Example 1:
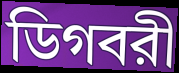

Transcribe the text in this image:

ডিগবরী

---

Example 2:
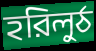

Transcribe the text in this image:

হরিলুঠ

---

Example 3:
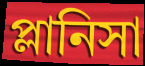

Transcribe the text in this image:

প্লানিসা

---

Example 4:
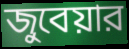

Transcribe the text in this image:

জুবেয়ার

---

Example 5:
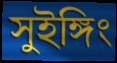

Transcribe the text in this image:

সুইঙ্গিং